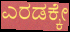
ಎರಡಕ್ಕೇ